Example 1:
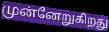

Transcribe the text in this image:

முன்னேறுகிறது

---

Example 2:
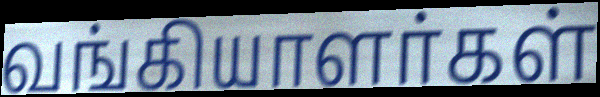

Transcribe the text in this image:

வங்கியாளர்கள்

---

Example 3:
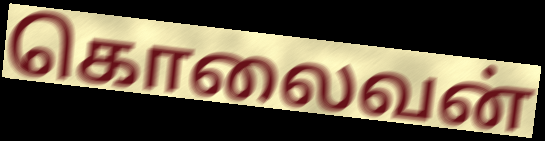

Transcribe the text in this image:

கொலைவன்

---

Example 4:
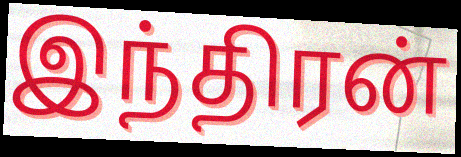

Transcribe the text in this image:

இந்திரன்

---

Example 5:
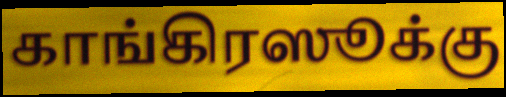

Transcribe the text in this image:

காங்கிரஸூக்கு